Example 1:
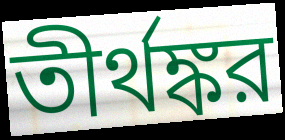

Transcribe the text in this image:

তীর্থঙ্কর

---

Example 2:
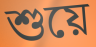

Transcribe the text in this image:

শুয়ে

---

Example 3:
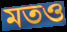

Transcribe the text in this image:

মতও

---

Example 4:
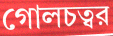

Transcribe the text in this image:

গোলচত্বর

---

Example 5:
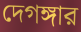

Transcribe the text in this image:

দেগঙ্গার